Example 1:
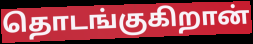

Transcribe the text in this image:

தொடங்குகிறான்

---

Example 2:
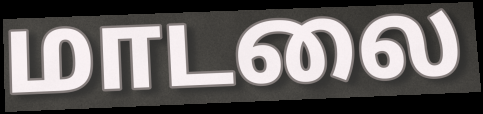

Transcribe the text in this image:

மாடலை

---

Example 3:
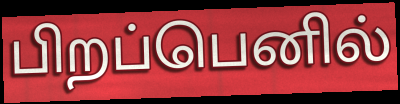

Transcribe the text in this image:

பிறப்பெனில்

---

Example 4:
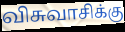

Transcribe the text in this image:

விசுவாசிக்கு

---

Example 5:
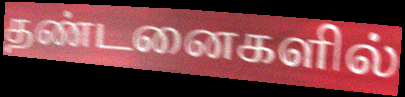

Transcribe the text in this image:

தண்டனைகளில்